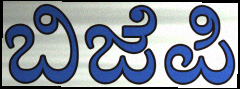
ಬಿಜೆಪಿ